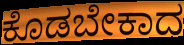
ಕೊಡಬೇಕಾದ